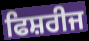
ਫਿਸ਼ਰੀਜ